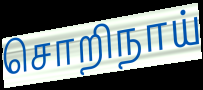
சொறிநாய்